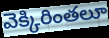
వెక్కిరింతలూ